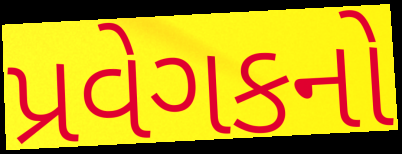
પ્રવેગકનો